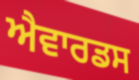
ਐਵਾਰਡਸ